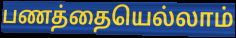
பணத்தையெல்லாம்